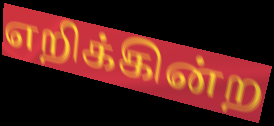
எறிக்கின்ற